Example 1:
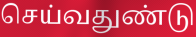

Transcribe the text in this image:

செய்வதுண்டு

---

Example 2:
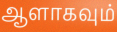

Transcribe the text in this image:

ஆளாகவும்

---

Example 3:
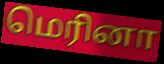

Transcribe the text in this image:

மெரினா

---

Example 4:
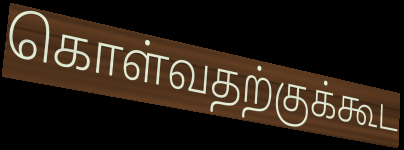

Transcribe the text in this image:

கொள்வதற்குக்கூட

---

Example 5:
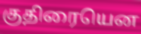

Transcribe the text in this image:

குதிரையென